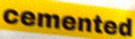
cemented